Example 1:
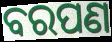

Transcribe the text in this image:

ବରପଣ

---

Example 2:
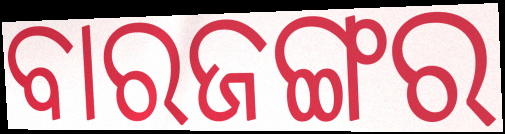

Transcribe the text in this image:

ବାରଜଙ୍ଗର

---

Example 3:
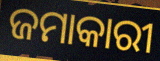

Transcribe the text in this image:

ଜମାକାରୀ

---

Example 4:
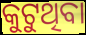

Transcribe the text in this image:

କୁଟୁଥିବା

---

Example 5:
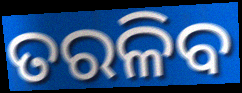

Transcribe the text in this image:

ତରଳିବ